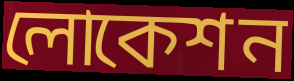
লোকেশন